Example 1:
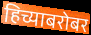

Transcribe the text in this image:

हिच्याबरोबर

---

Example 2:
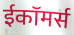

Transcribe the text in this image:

ईकॉमर्स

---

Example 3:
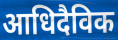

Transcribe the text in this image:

आधिदैविक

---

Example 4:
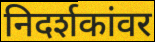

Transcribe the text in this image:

निदर्शकांवर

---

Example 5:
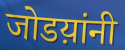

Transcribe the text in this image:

जोडय़ांनी